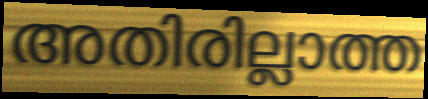
അതിരില്ലാത്ത